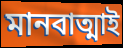
মানবাত্মাই